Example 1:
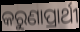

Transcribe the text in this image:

କରୁଣାପ୍ରାର୍ଥୀ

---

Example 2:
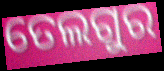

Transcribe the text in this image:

ତେଲଗୁର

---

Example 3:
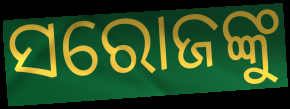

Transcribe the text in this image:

ସରୋଜଙ୍କୁ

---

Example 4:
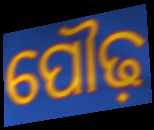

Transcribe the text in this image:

ପୌଢ଼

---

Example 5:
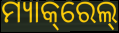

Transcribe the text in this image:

ମ୍ୟାକ୍‌ରେଲ୍